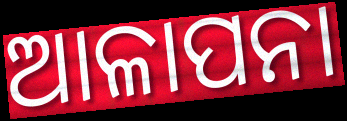
ଆଳାପନା